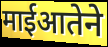
माईआतेने